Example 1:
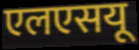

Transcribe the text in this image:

एलएसयू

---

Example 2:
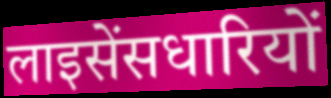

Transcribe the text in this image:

लाइसेंसधारियों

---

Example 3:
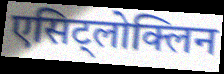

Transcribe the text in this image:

एसिट्लोक्लिन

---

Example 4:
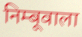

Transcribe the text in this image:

निम्बूवाला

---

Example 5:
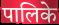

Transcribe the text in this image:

पालिके